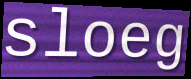
sloeg